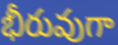
భీరువుగా